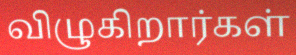
விழுகிறார்கள்